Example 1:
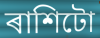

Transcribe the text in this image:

ৰাশিটো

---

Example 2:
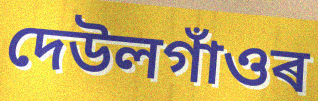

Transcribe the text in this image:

দেউলগাঁওৰ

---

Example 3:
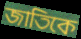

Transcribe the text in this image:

জাতিকে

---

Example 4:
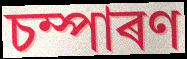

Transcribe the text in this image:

চম্পাৰণ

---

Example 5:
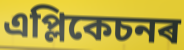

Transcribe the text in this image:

এপ্লিকেচনৰ